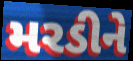
મરડીને